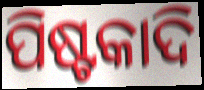
ପିଷ୍ଟକାଦି